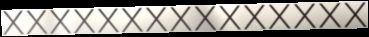
xxxxxxxxxxxxxxx